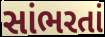
સાંભરતાં